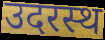
उदरस्थ